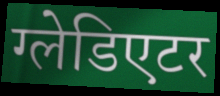
ग्लेडिएटर